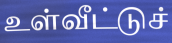
உள்வீட்டுச்